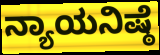
ನ್ಯಾಯನಿಷ್ಠೆ